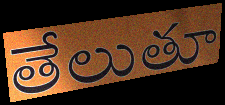
తేలుతూ